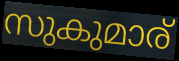
സുകുമാര്